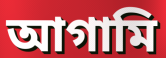
আগামি